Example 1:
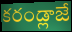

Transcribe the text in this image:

కరండ్లాజే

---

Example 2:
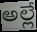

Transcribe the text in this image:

అల్లే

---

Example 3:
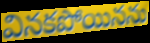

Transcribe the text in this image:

వినకపోయినను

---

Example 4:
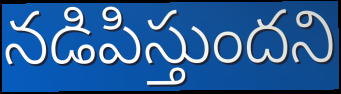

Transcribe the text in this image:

నడిపిస్తుందని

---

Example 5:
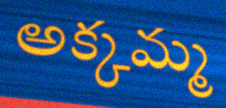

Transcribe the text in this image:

అక్కమ్మ